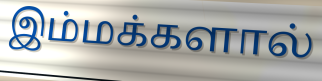
இம்மக்களால்